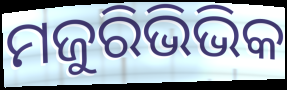
ମଜୁରିଭିଭିକ